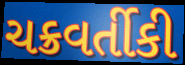
ચક્રવર્તીકી